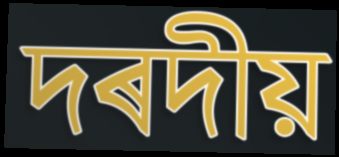
দৰদীয়